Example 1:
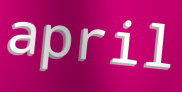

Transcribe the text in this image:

april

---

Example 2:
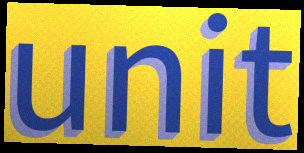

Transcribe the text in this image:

unit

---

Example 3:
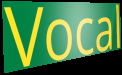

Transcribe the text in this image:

Vocal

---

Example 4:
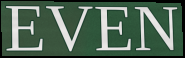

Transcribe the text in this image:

EVEN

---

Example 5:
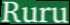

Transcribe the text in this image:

Ruru